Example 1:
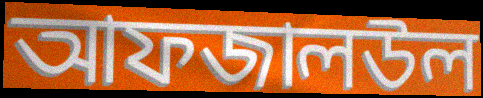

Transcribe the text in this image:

আফজালউল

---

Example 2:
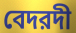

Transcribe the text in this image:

বেদরদী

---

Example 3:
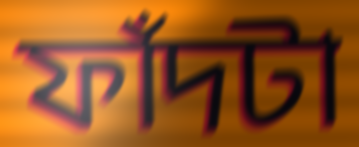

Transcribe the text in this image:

ফাঁদটা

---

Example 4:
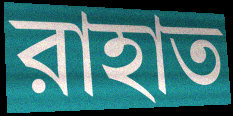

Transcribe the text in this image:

রাহাত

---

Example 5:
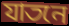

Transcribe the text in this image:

যাতনে